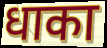
धाका